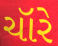
ચૉરે